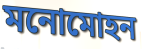
মনোমোহন